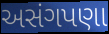
અસંગપણા